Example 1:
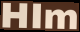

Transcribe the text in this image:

HIm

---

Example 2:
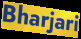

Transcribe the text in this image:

Bharjari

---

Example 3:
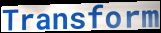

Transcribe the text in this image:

Transform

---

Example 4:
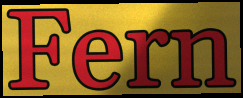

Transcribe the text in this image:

Fern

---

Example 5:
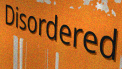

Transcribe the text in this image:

Disordered